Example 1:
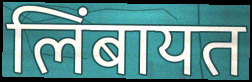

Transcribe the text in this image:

लिंबायत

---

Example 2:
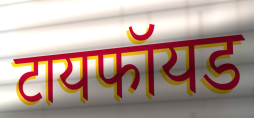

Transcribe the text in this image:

टायफॉयड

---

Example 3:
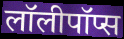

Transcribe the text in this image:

लॉलीपॉप्स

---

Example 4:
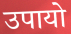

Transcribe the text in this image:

उपायो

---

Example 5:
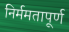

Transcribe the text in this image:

निर्ममतापूर्ण